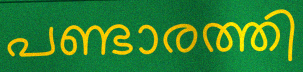
പണ്ടാരത്തി